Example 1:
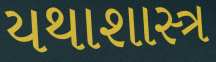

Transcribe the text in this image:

યથાશાસ્‍ત્ર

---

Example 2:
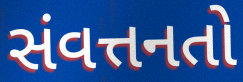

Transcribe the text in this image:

સંવત્તનતો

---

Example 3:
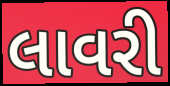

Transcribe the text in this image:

લાવરી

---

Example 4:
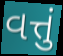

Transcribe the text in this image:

વત્તું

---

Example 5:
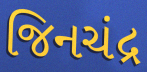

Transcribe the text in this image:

જિનચંદ્ર